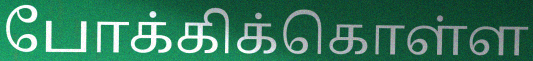
போக்கிக்கொள்ள